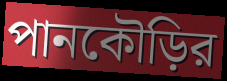
পানকৌড়ির